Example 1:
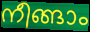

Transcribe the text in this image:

നീങ്ങാം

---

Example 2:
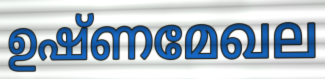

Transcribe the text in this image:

ഉഷ്ണമേഖല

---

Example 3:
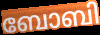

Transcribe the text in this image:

ബോബി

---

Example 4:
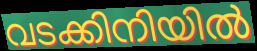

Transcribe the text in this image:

വടക്കിനിയിൽ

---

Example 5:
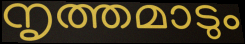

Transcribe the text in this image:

നൃത്തമാടും